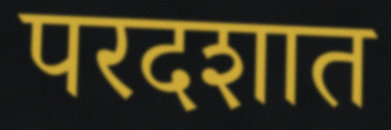
परदशात